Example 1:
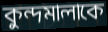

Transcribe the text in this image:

কুন্দমালাকে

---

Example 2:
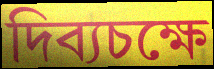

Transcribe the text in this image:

দিব্যচক্ষে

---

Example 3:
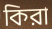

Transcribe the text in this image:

কিরা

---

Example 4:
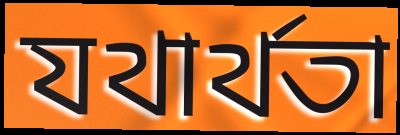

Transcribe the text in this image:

যথার্থতা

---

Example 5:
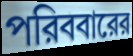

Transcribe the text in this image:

পরিববারের